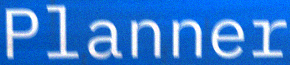
Planner